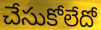
చేసుకోలేదో